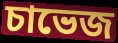
চাভেজ